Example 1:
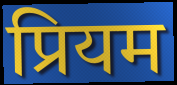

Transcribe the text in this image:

प्रियम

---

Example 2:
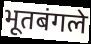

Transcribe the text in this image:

भूतबंगले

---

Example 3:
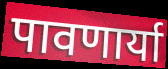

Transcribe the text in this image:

पावणार्या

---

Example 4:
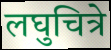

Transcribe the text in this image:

लघुचित्रे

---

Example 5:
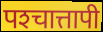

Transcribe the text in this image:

पश्‍चात्तापी